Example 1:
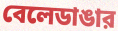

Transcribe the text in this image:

বেলেডাঙার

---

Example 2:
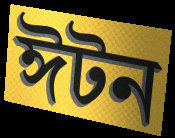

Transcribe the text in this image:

ঈটন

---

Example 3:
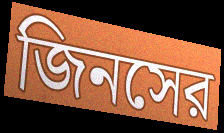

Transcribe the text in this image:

জিনসের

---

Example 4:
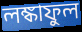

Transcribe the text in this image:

লঙ্কাফুল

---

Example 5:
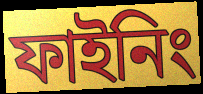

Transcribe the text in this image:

ফাইনিং